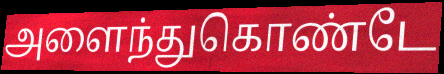
அளைந்துகொண்டே